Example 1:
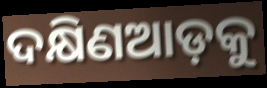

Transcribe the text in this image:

ଦକ୍ଷିଣଆଡ଼କୁ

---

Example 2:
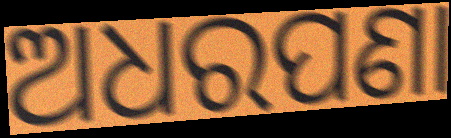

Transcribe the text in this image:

ଅଧରପଣା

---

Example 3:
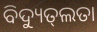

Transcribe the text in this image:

ବିଦ୍ୟୁତ୍‌ଲତା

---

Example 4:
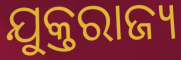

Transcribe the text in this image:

ଯୁକ୍ତରାଜ୍ୟ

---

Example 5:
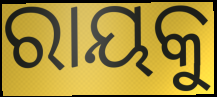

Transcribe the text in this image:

ରାୟକୁ